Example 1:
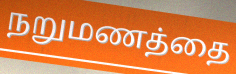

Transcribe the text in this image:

நறுமணத்தை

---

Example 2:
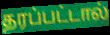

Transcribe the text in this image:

தரப்பட்டால்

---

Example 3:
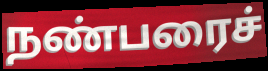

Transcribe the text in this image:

நண்பரைச்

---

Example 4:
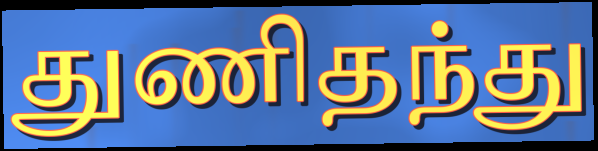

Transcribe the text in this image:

துணிதந்து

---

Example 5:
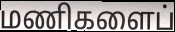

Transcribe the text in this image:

மணிகளைப்